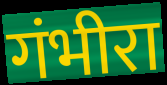
गंभीरा